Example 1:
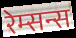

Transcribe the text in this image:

रेम्सन्स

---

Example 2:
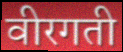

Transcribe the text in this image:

वीरगती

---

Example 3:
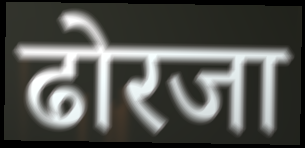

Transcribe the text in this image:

ढोरजा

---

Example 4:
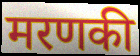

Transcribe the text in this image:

मरणकी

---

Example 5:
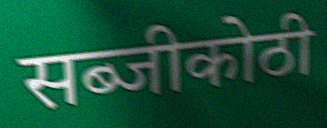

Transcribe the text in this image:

सब्जीकोठी